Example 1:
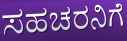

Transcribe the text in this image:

ಸಹಚರನಿಗೆ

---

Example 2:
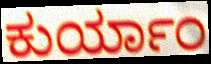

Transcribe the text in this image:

ಕುರ್ಯಾಂ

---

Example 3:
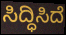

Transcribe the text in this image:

ಸಿದ್ಧಿಸಿದೆ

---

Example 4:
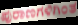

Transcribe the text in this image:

ಪುರಾಣಗಳಿಗಿಂತ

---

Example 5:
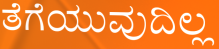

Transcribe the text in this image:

ತೆಗೆಯುವುದಿಲ್ಲ